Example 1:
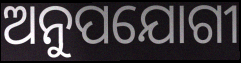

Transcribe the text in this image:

ଅନୁପଯୋଗୀ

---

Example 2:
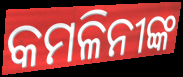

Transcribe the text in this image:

କମଳିନୀଙ୍କ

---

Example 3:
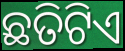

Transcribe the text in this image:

ଛତିଟିଏ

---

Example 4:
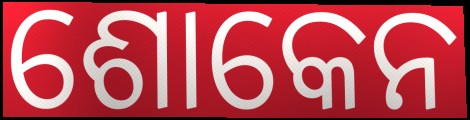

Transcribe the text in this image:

ଶୋକେନ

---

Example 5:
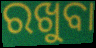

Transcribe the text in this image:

ରଖୁବା